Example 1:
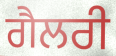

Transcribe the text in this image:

ਗੈਲਰੀ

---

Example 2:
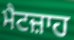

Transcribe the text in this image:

ਮੈਟਜ਼ਾਹ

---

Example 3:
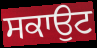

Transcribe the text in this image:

ਸਕਾਉਟ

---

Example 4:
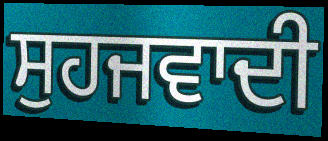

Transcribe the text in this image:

ਸੁਹਜਵਾਦੀ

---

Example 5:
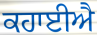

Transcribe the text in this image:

ਕਹਾਈਐ